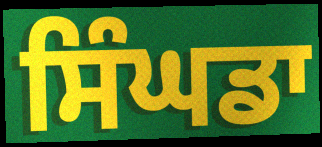
ਸਿੰਘਡਾ